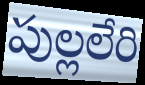
పుల్లలేరి